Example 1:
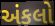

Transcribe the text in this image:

અંકલો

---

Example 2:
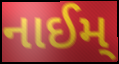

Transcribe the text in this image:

નાઈમ્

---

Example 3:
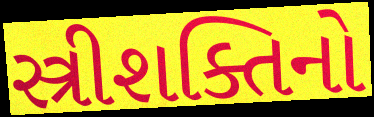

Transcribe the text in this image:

સ્ત્રીશક્તિનો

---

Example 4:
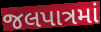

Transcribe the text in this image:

જલપાત્રમાં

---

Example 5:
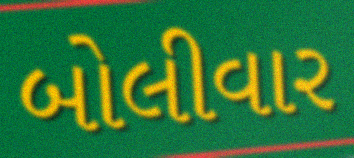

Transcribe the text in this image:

બોલીવાર